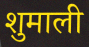
शुमाली